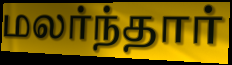
மலர்ந்தார்